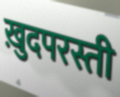
ख़ुदपरस्ती